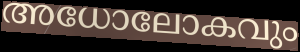
അധോലോകവും